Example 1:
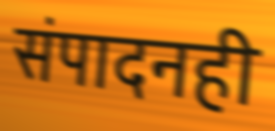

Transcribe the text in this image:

संपादनही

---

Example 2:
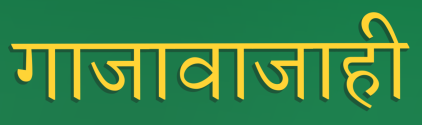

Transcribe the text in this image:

गाजावाजाही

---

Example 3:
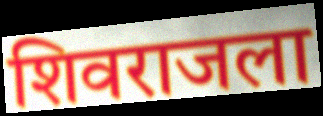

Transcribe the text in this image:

शिवराजला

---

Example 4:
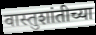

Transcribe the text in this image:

वास्तुशांतीच्या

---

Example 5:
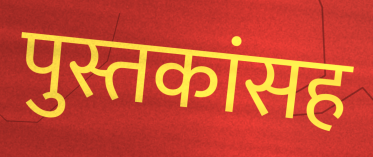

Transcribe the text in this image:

पुस्तकांसह